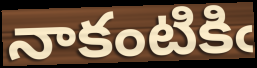
నాకంటికిఁ